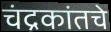
चंद्रकांतचे